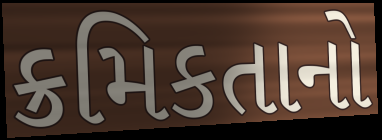
ક્રમિકતાનો